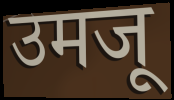
उमजू